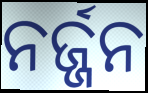
ନର୍ଜ୍ଜନ